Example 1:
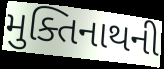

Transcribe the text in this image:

મુક્તિનાથની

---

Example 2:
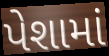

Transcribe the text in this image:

પેશામાં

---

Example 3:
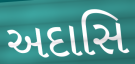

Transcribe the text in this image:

અદાસિ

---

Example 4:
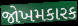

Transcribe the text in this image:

જોખમકારક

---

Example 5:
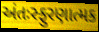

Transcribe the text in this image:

અંતઃસ્ફુરણાત્મક